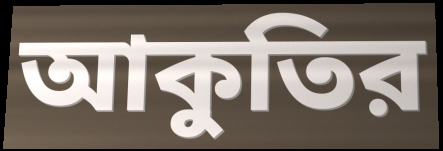
আকুতির